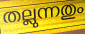
തല്ലുന്നതും